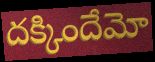
దక్కిందేమో